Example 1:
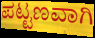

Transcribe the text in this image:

ಪಟ್ಟಣವಾಗಿ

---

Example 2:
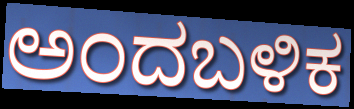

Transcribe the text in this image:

ಅಂದಬಳಿಕ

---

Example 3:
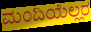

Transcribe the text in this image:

ಮಂದಿಯೆಲ್ಲರ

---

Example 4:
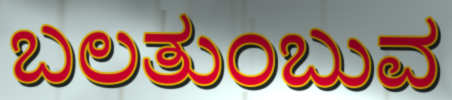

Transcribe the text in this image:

ಬಲತುಂಬುವ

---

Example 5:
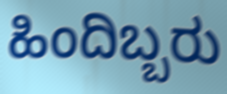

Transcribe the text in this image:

ಹಿಂದಿಬ್ಬರು